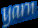
yarn